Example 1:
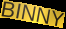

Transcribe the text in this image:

BINNY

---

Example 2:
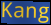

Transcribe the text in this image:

Kang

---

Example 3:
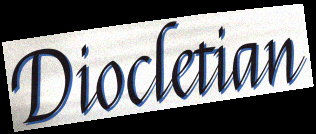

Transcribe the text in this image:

Diocletian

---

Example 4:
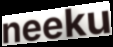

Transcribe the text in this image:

neeku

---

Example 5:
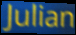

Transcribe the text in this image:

Julian